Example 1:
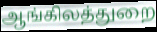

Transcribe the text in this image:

ஆங்கிலத்துறை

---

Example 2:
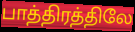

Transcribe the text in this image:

பாத்திரத்திலே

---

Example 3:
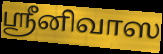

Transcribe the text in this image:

ஸ்ரீனிவாஸ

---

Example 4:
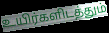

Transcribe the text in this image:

உயிர்களிடத்தும்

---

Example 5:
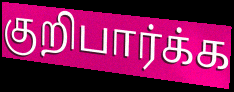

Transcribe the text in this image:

குறிபார்க்க